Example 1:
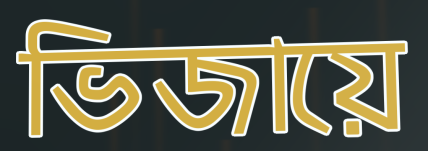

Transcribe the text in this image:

ভিজায়ে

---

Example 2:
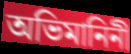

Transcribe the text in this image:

অভিমানিনী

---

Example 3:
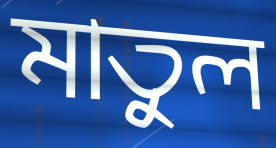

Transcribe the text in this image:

মাতুল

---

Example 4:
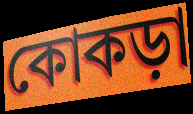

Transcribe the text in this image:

কোকড়া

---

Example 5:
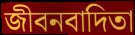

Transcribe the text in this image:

জীবনবাদিতা